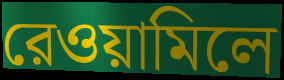
রেওয়ামিলে